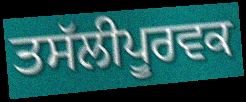
ਤਸੱਲੀਪੂਰਵਕ